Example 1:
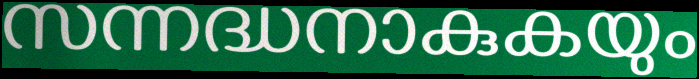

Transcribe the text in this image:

സന്നദ്ധനാകുകയും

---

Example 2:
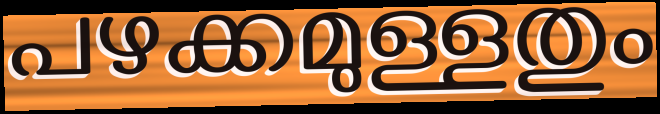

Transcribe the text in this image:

പഴക്കമുള്ളതും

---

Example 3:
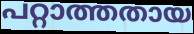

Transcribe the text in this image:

പറ്റാത്തതായ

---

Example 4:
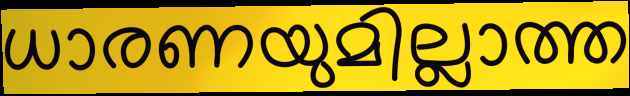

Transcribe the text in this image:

ധാരണയുമില്ലാത്ത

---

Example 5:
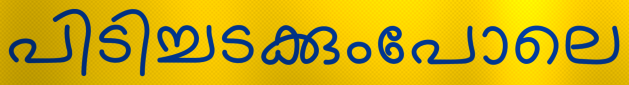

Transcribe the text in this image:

പിടിച്ചടക്കുംപോലെ